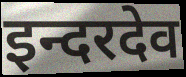
इन्दरदेव